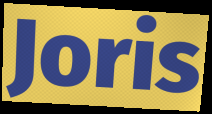
Joris